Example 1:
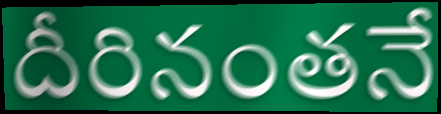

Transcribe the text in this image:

దీరినంతనే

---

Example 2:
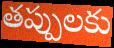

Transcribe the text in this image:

తప్పులకు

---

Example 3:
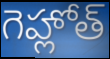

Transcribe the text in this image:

గెహ్లోత్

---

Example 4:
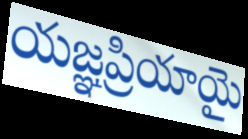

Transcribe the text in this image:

యజ్ఞప్రియాయై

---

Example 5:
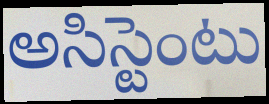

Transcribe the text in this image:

అసిస్టెంటు